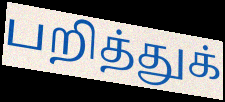
பறித்துக்